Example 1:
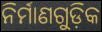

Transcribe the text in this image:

ନିର୍ମାଣଗୁଡ଼ିକ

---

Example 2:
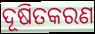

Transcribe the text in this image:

ଦୂଷିତକରଣ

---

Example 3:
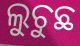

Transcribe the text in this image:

ଲୁଚୁଛ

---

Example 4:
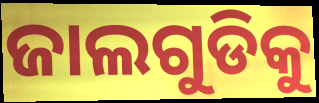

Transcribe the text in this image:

ଜାଲଗୁଡିକୁ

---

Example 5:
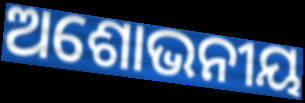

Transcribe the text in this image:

ଅଶୋଭନୀୟ